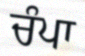
ਚੰਪਾ